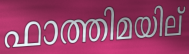
ഫാത്തിമയില്